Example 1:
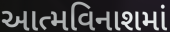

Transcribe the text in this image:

આત્મવિનાશમાં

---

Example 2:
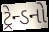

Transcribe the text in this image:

ટ્રેન્ડનો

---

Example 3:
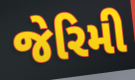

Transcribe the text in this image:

જેરિમી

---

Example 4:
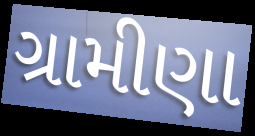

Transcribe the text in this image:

ગ્રામીણા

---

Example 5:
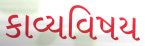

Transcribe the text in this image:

કાવ્યવિષય